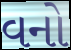
વનો